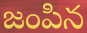
జంపిన